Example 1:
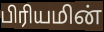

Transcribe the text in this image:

பிரியமின்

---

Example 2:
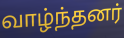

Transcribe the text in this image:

வாழ்ந்தனர்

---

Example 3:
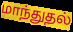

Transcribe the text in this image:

மாந்துதல்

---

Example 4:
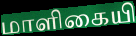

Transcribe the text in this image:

மாளிகையி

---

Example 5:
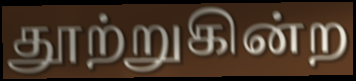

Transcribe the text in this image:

தூற்றுகின்ற